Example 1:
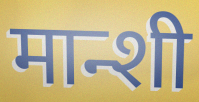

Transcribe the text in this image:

मान्शी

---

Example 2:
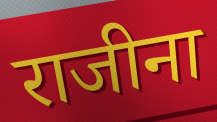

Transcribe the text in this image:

राजीना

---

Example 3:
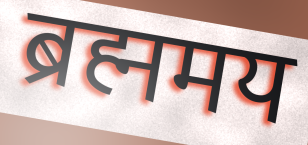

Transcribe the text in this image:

ब्रह्ममय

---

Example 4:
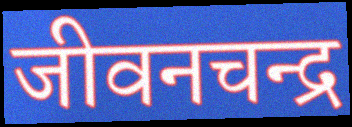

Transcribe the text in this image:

जीवनचन्द्र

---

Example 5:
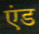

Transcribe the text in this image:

एंड